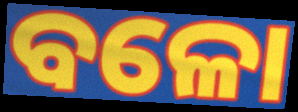
ବଳୋ